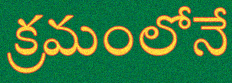
క్రమంలోనే